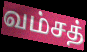
வம்சத்